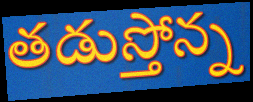
తడుస్తోన్న